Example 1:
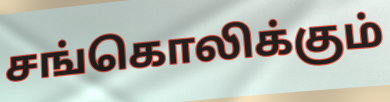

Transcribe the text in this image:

சங்கொலிக்கும்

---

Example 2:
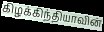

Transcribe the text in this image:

கிழக்கிந்தியாவின்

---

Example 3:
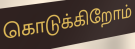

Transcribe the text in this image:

கொடுக்கிறோம்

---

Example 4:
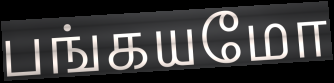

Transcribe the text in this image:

பங்கயமோ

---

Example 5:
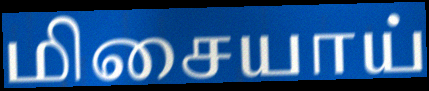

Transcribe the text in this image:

மிசையாய்